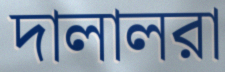
দালালরা